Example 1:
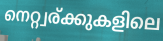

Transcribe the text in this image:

നെറ്റ്വര്ക്കുകളിലെ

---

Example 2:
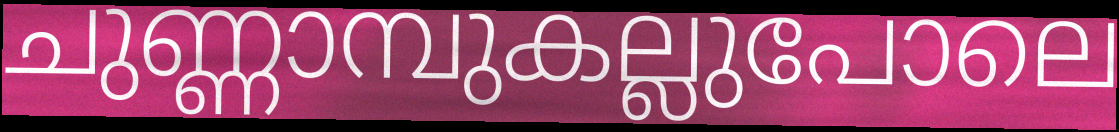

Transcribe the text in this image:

ചുണ്ണാമ്പുകല്ലുപോലെ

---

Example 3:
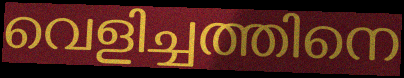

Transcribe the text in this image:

വെളിച്ചത്തിനെ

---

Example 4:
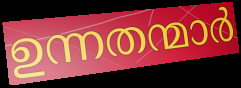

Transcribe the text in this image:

ഉന്നതന്മാർ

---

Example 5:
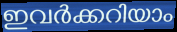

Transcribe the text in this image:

ഇവർക്കറിയാം